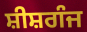
ਸ਼ੀਸ਼ਗੰਜ